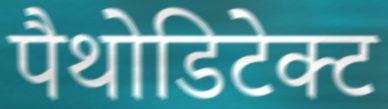
पैथोडिटेक्ट